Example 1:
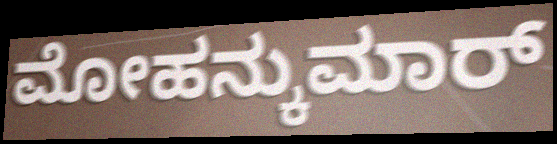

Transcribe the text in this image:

ಮೋಹನ್ಕುಮಾರ್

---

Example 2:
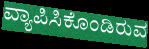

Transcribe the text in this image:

ವ್ಯಾಪಿಸಿಕೊಂಡಿರುವ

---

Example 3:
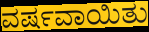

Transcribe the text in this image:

ವರ್ಷವಾಯಿತು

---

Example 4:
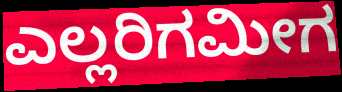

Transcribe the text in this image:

ಎಲ್ಲರಿಗಮೀಗ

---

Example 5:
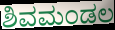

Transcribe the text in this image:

ಶಿವಮಂಡಲ